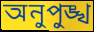
অনুপুঙ্খ